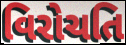
વિરોચતિ